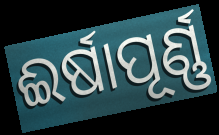
ଈର୍ଷାପୂର୍ଣ୍ଣ